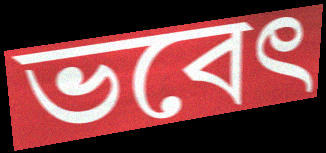
ভবেৎ